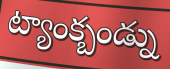
ట్యాంక్బండ్ను